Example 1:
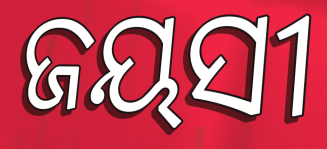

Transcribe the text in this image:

ଜୟସୀ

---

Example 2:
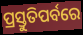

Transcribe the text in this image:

ପ୍ରସ୍ତୁତିପର୍ବରେ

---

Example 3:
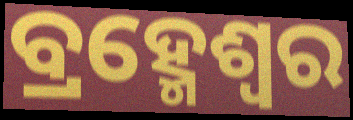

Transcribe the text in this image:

ବ୍ରହ୍ମେଶ୍ଵର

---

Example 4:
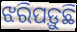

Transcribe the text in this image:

ଝରିପଡ଼ୁଛି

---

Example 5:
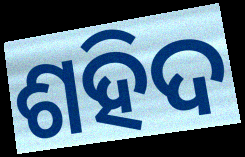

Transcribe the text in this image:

ଶହିଦ